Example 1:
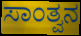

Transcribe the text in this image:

ಸಾಂತ್ವನ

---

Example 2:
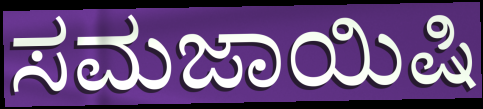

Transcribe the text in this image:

ಸಮಜಾಯಿಷಿ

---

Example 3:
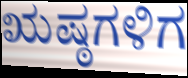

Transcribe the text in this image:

ಋಷ್ಠಗಳಿಗ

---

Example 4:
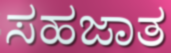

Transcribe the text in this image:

ಸಹಜಾತ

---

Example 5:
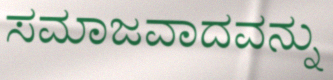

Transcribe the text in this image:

ಸಮಾಜವಾದವನ್ನು